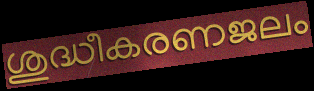
ശുദ്ധീകരണജലം